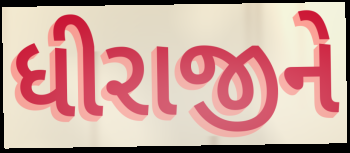
ધીરાજીને